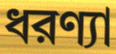
ধরণ্যা